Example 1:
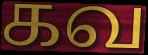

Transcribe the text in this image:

கவ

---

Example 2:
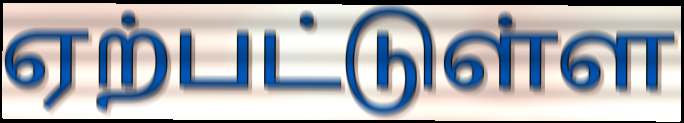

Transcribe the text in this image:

ஏற்பட்டுள்ள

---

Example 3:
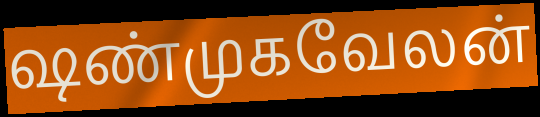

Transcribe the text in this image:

ஷண்முகவேலன்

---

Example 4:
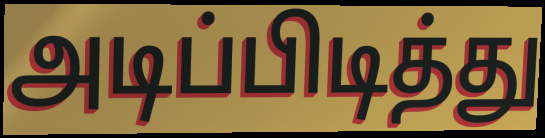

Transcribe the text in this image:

அடிப்பிடித்து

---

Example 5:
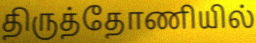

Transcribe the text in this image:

திருத்தோணியில்